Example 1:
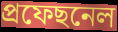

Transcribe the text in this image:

প্ৰফেছনেল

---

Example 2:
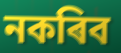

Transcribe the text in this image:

নকৰিব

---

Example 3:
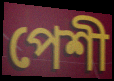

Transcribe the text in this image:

পেশী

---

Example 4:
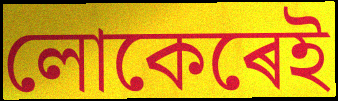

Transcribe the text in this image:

লোকেৰেই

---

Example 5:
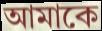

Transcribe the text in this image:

আমাকে